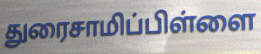
துரைசாமிப்பிள்ளை